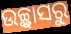
ଉଚ୍ଛ୍ୱାସରୁ